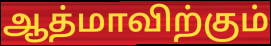
ஆத்மாவிற்கும்